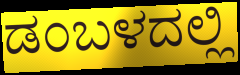
ಡಂಬಳದಲ್ಲಿ